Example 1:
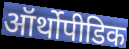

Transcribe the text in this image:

ऑर्थोपीडिक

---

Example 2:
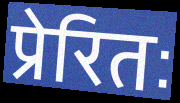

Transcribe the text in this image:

प्रेरितः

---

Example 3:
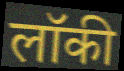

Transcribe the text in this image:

लॉकी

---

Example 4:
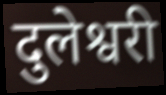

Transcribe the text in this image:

दुलेश्वरी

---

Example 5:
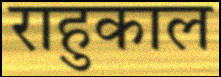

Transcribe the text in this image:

राहुकाल